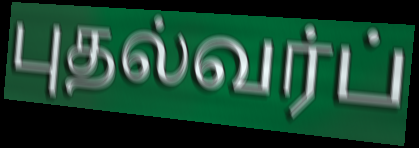
புதல்வர்ப்